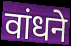
वांधने